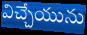
విచ్చేయును